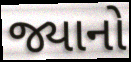
જ્યાનો